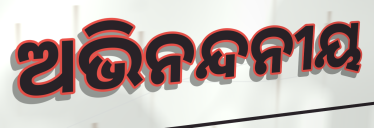
ଅଭିନନ୍ଦନୀୟ